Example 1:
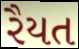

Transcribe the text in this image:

રૈયત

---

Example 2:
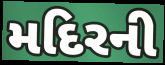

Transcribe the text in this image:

મદિરની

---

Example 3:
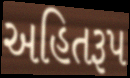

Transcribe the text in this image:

અહિતરૂપ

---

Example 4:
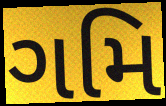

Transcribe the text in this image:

ગમિ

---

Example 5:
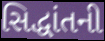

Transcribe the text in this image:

સિદ્ધાંતની